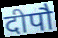
दीपौ